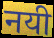
नयी